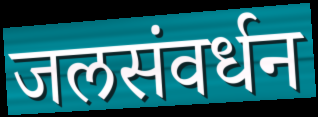
जलसंवर्धन